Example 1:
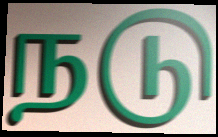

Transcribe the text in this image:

நடு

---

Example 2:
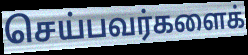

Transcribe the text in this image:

செய்பவர்களைக்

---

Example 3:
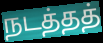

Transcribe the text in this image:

நடத்தத்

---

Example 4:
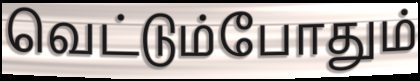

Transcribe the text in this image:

வெட்டும்போதும்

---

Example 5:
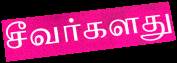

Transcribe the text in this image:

சீவர்களது